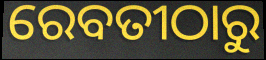
ରେବତୀଠାରୁ